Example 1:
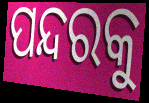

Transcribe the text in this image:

ପନ୍ଦରକୁ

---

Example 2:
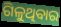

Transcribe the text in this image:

ଗିଳୁଥିବାର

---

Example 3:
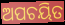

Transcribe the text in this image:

ଅପଚୟିତ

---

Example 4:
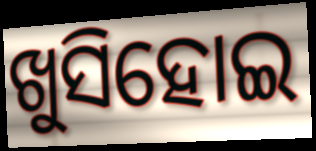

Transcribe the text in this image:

ଖୁସିହୋଇ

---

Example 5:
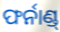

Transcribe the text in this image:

ଫର୍ନାଣ୍ଡ୍